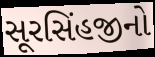
સૂરસિંહજીનો